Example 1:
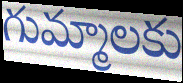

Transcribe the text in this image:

గుమ్మాలకు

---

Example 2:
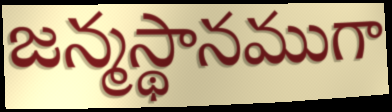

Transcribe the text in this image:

జన్మస్థానముగా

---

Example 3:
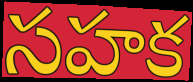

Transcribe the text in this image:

సహక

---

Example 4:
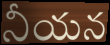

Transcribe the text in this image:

నీయన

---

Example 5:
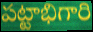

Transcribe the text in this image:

పట్టాభిగారి